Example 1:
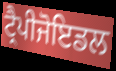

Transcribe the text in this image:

ਟ੍ਰੈਪੀਜੋਇਡਲ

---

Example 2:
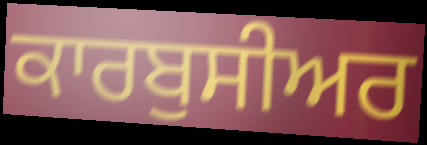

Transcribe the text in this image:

ਕਾਰਬੁਸੀਅਰ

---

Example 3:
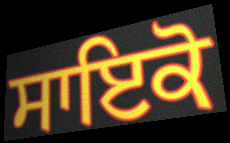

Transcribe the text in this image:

ਸਾਇਕੋ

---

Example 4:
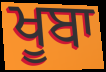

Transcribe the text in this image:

ਖੂਬਾ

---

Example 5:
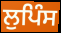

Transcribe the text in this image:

ਲੁਪਿੰਸ